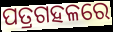
ପତ୍ରଗହଳରେ